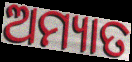
ଅମ୍ୟାତ